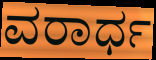
ವರಾರ್ಧ